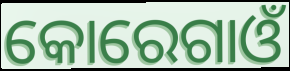
କୋରେଗାଓଁ